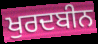
ਖੁਰਦਬੀਨ